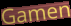
Gamen